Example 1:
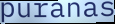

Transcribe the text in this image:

puranas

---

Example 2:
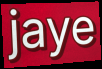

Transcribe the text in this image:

jaye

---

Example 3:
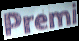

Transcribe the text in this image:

Premi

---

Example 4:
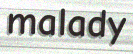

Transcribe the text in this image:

malady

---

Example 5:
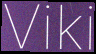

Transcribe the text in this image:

Viki